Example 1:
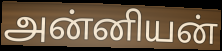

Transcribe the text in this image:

அன்னியன்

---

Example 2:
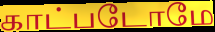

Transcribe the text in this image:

காட்படோமே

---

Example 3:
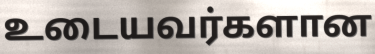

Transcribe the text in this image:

உடையவர்களான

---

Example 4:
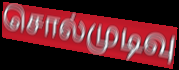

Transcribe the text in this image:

சொல்முடிவு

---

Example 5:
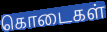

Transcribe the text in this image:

கொடைகள்